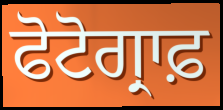
ਫੋਟੋਗ੍ਰਾਫ਼